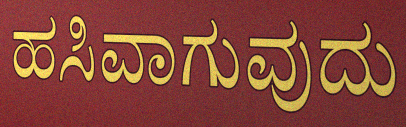
ಹಸಿವಾಗುವುದು